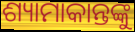
ଶ୍ୟାମାକାନ୍ତଙ୍କୁ